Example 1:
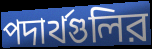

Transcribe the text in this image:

পদার্থগুলির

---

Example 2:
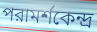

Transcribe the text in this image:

পরামর্শকেন্দ্র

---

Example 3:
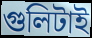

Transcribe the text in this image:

গুলিটাই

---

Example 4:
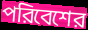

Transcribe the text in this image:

পরিবেশের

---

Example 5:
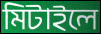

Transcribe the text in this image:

মিটাইলে